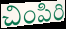
చింపిరి